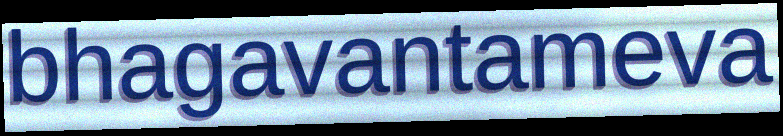
bhagavantameva